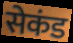
सेकंड